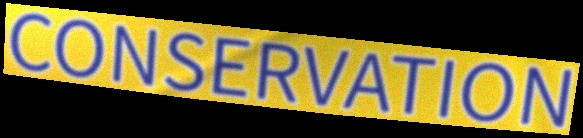
CONSERVATION